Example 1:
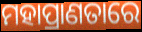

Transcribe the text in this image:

ମହାପ୍ରାଣତାରେ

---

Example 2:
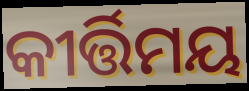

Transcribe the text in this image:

କୀର୍ତ୍ତିମୟ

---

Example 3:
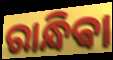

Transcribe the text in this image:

ରାନ୍ଧିଵା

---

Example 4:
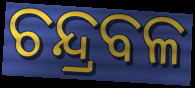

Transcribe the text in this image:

ଚନ୍ଦ୍ରବଳ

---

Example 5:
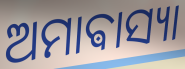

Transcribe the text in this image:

ଅମାଵାସ୍ୟା